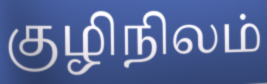
குழிநிலம்